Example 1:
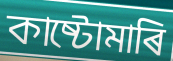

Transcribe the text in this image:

কাষ্টোমাৰি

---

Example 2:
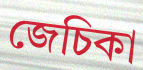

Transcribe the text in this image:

জেচিকা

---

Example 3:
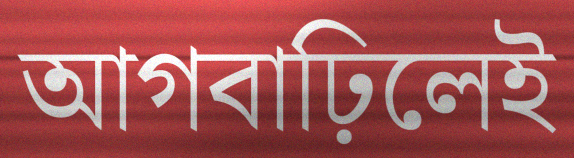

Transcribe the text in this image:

আগবাঢ়িলেই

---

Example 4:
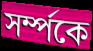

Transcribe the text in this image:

সৰ্ম্পকে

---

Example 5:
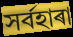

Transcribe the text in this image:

সৰ্বহাৰা